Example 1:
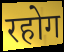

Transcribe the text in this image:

रहोग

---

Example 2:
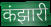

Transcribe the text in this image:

कंझारी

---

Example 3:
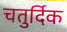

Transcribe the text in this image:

चतुर्दिक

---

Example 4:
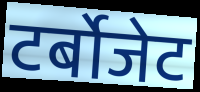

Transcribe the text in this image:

टर्बोजेट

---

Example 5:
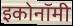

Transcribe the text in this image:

इकोनॉमी